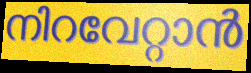
നിറവേറ്റാൻ